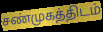
சண்முகத்திடம்